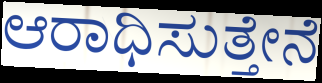
ಆರಾಧಿಸುತ್ತೇನೆ